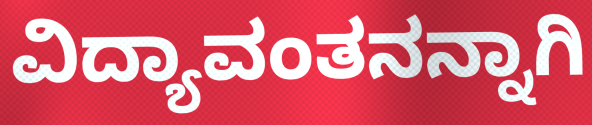
ವಿದ್ಯಾವಂತನನ್ನಾಗಿ